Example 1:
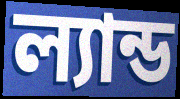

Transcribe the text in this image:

ল্যান্ড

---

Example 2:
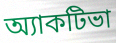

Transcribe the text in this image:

অ্যাকটিভা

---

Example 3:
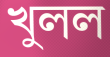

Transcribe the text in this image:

খুলল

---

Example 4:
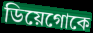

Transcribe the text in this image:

ডিয়েগোকে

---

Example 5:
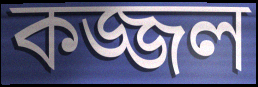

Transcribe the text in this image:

কজ্জল